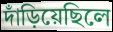
দাঁড়িয়েছিলে